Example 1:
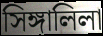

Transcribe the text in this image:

সিঙ্গালিলা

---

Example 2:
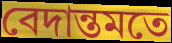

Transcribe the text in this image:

বেদান্তমতে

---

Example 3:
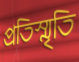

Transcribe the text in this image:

প্রতিস্মৃতি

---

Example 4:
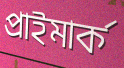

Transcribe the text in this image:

প্রাইমার্ক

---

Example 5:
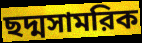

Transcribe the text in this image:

ছদ্মসামরিক